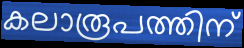
കലാരൂപത്തിന്